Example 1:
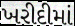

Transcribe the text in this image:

ખરીદીમાં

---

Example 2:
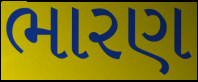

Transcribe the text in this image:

ભારણ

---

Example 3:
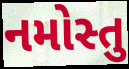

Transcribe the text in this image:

નમોસ્તુ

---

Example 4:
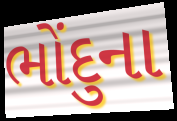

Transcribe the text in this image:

ભોંદુના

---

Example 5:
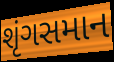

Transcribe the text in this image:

શૃંગસમાન